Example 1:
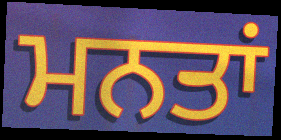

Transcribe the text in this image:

ਮਨਤਾਂ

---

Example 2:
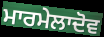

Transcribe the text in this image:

ਮਾਰਮੇਲਾਦੋਵ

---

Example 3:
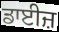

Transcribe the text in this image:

ਡਾਈਜ਼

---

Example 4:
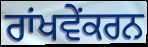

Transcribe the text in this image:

ਰਾਂਖਵੇਂਕਰਨ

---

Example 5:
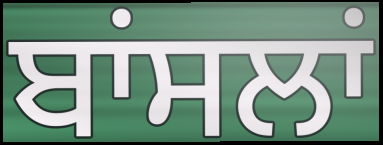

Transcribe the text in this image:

ਬਾਂਸਲਾਂ